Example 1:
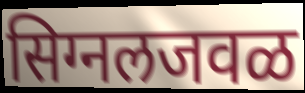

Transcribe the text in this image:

सिग्नलजवळ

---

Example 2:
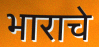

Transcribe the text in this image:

भाराचे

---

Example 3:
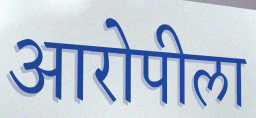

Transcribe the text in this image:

आरोपीला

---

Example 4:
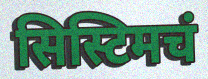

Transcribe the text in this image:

सिस्टिमचं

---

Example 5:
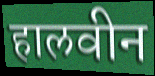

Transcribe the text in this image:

हालवीन